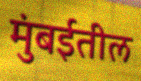
मुंबईतील